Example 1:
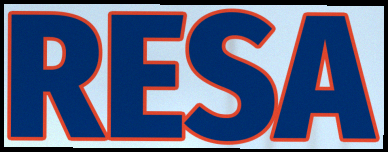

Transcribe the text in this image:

RESA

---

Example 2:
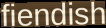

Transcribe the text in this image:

fiendish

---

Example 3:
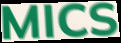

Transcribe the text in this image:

MICS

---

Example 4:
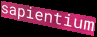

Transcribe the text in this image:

sapientium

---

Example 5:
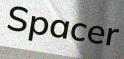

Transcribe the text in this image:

Spacer